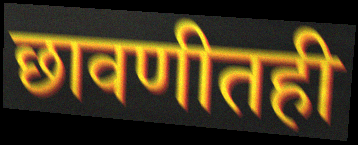
छावणीतही